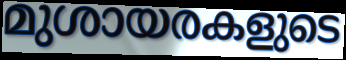
മുശായരകളുടെ